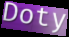
Doty